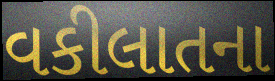
વકીલાતના